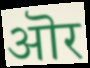
ऒर